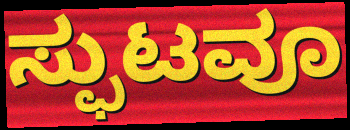
ಸ್ಫುಟವೂ